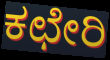
ಕಛೇರಿ